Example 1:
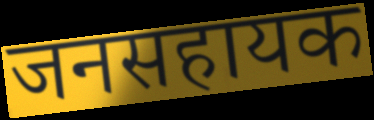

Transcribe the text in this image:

जनसहायक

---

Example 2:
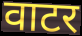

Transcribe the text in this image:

वाटर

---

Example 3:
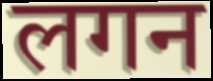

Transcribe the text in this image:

लगन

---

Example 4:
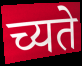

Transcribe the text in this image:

च्यते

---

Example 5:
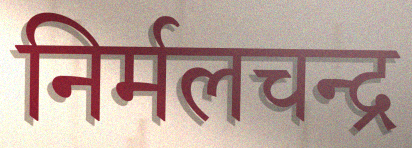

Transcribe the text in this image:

निर्मलचन्द्र